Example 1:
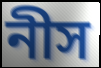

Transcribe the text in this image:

নীস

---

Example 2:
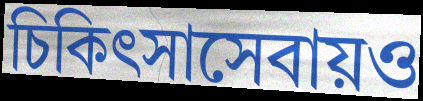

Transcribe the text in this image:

চিকিৎসাসেবায়ও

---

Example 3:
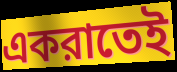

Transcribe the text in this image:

একরাতেই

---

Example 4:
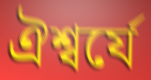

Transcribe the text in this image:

ঐশ্বর্যে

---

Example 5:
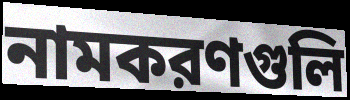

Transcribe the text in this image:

নামকরণগুলি